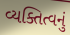
વ્યક્તિત્વનું